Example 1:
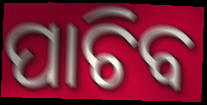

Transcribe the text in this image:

ପାଚିବ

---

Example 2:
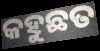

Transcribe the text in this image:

କହୁଛତ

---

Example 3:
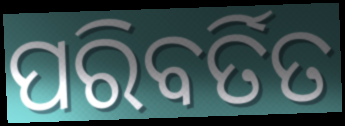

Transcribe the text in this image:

ପରିବର୍ତିତ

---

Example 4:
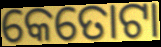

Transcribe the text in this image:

କେତୋଟା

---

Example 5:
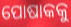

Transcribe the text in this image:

ପୋଷାକକୁ